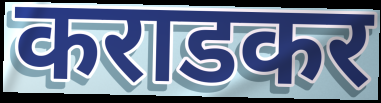
कराडकर